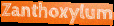
Zanthoxylum